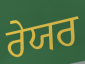
ਰੇਯਰ